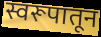
स्वरूपातून